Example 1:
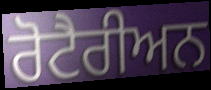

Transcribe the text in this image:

ਰੋਟੈਰੀਅਨ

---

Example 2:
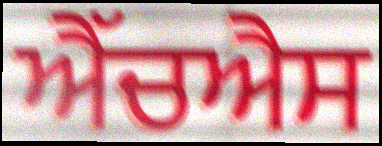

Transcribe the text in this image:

ਐੱਚਐਸ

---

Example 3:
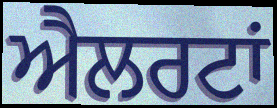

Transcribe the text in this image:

ਐਲਰਟਾਂ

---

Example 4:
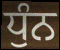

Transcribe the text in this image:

ਧੁੰਨ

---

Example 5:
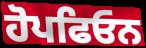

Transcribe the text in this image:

ਹੋਪਫਿਓਨ